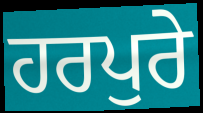
ਹਰਪੁਰੇ